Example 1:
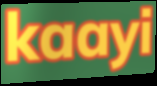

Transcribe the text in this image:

kaayi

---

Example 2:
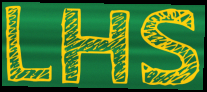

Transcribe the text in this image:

LHS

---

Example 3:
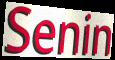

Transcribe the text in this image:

Senin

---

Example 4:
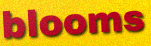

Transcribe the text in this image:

blooms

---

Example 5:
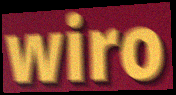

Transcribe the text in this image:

wiro